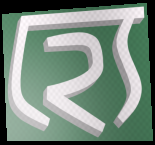
হ্যে